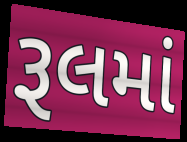
રૂલમાં